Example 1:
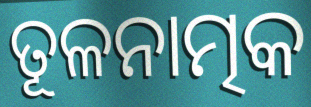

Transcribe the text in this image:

ତୂଳନାତ୍ମକ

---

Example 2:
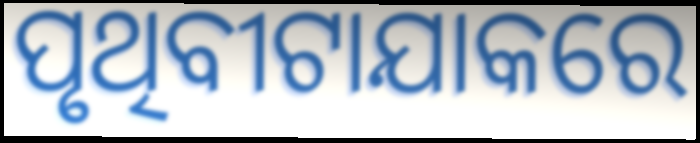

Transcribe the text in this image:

ପୃଥିବୀଟାଯାକରେ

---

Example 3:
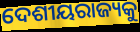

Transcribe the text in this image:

ଦେଶୀୟରାଜ୍ୟକୁ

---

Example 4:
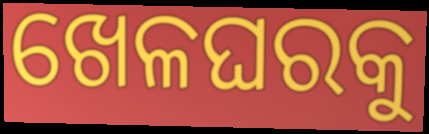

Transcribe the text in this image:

ଖେଳଘରକୁ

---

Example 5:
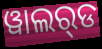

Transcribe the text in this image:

ୱାଲର୍‌ଡ